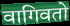
वागिवतो